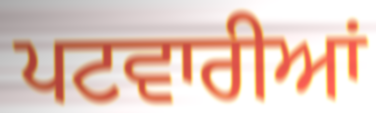
ਪਟਵਾਰੀਆਂ